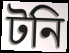
টনি